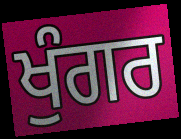
ਖੁੰਗਰ